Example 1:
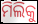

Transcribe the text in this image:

ମିଲିକୁ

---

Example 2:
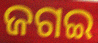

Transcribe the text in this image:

ଜଗଇ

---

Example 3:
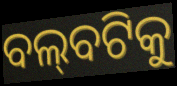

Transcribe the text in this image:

ବଲ୍‌ବଟିକୁ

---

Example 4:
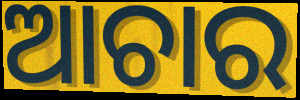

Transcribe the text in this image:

ଆଚାର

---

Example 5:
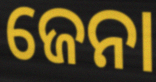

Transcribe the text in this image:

ଜେନା